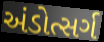
અંડોત્સર્ગ